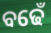
ବଢେଁ